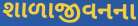
શાળાજીવનના